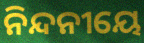
ନିନ୍ଦନୀୟେ